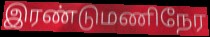
இரண்டுமணிநேர